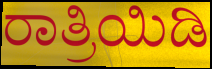
ರಾತ್ರಿಯಿಡಿ